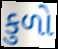
કુળો